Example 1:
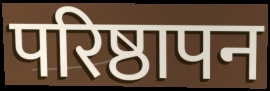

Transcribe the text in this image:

परिष्ठापन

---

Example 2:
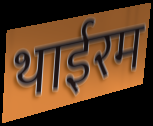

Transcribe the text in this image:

थाईरम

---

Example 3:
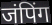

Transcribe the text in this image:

जंपिंग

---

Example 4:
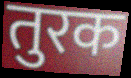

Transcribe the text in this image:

तुरक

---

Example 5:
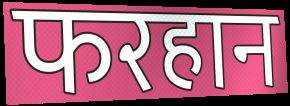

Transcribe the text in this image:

फरहान